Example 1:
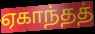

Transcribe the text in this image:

ஏகாந்தத்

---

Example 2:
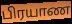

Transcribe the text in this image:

பிரயாண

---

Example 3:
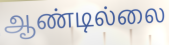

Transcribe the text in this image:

ஆண்டில்லை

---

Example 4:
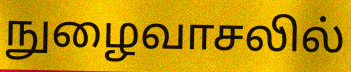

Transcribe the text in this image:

நுழைவாசலில்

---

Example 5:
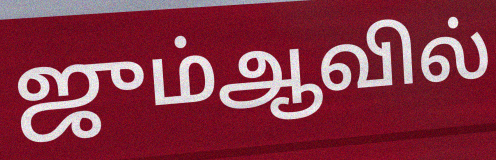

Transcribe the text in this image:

ஜும்ஆவில்